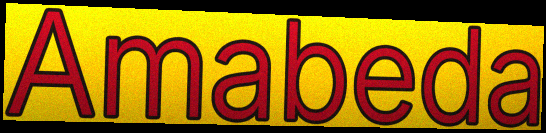
Amabeda